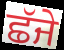
ਛੱਜੇ